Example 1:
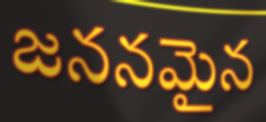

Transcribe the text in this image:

జననమైన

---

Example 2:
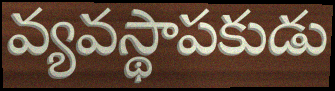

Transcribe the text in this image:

వ్యవస్థాపకుడు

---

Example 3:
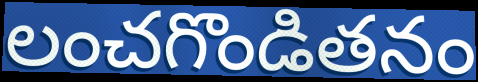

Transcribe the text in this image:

లంచగొండితనం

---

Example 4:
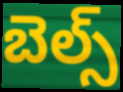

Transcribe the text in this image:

బెల్స్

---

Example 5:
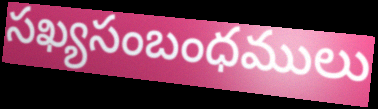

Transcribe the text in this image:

సఖ్యసంబంధములు